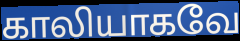
காலியாகவே